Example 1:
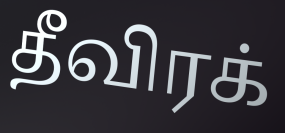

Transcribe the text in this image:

தீவிரக்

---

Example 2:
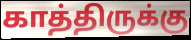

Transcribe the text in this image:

காத்திருக்கு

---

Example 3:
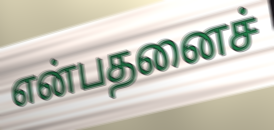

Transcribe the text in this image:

என்பதனைச்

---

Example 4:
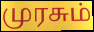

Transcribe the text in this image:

முரசும்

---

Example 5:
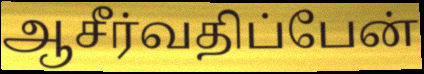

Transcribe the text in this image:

ஆசீர்வதிப்பேன்